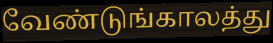
வேண்டுங்காலத்து